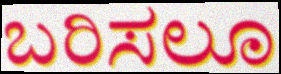
ಬರಿಸಲೂ